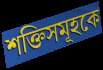
শক্তিসমূহকে